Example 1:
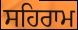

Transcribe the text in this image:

ਸਹਿਰਾਮ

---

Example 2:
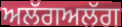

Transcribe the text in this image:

ਅਲੱਗਅਲੱਗ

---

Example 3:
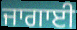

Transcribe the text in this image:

ਜਾਗਾਈ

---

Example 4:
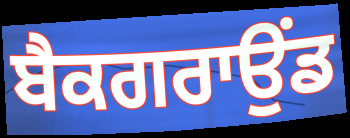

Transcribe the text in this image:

ਬੈਕਗਰਾਉਂਡ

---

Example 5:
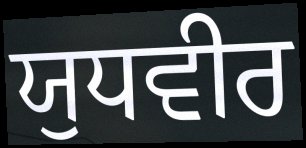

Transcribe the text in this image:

ਯੁਧਵੀਰ